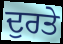
ਦੁਰਤੇ